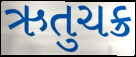
ઋતુચક્ર